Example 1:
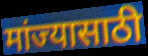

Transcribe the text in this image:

मांज्यासाठी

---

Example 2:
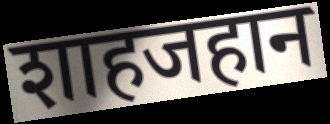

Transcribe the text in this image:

शाहजहान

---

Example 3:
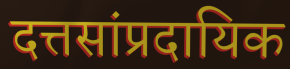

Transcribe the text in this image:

दत्तसांप्रदायिक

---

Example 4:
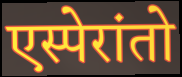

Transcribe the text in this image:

एस्पेरांतो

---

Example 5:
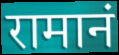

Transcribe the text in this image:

रामानं